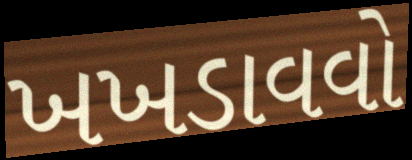
ખખડાવવો